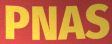
PNAS